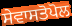
ਸੇਵਾਸਤੋਪੋਲ